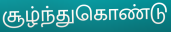
சூழ்ந்துகொண்டு